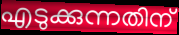
എടുക്കുന്നതിന്